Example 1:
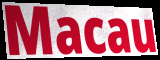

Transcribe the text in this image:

Macau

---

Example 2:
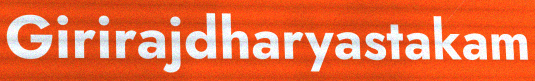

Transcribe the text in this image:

Girirajdharyastakam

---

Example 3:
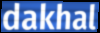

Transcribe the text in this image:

dakhal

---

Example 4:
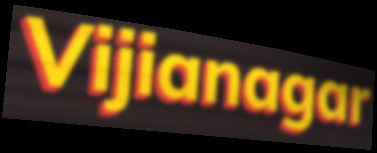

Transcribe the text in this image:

Vijianagar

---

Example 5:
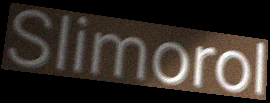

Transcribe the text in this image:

Slimorol